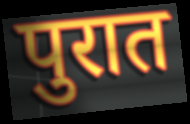
पुरात